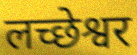
लच्छेश्वर